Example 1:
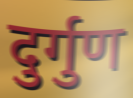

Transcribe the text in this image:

दुर्गुण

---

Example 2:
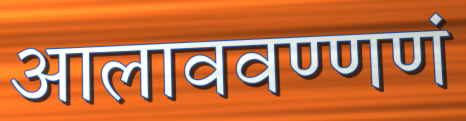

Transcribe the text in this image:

आलाववण्णणं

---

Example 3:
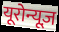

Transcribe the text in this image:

यूरोन्यूज़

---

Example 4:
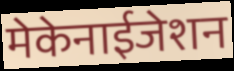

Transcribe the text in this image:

मेकेनाईजेशन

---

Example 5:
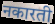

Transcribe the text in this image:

नकारती